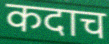
कदाच